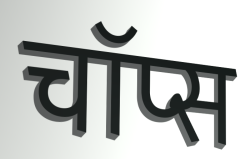
चॉप्स